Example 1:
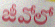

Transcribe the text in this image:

జీవోలో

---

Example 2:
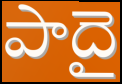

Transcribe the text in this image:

పాదై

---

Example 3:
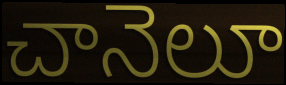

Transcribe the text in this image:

చానెలూ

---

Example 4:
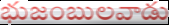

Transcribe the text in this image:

భుజంబులవాడు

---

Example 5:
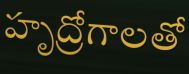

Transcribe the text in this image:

హృద్రోగాలతో